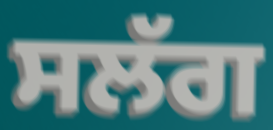
ਸਲੱਗ